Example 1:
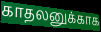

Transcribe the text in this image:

காதலனுக்காக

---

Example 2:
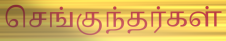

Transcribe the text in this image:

செங்குந்தர்கள்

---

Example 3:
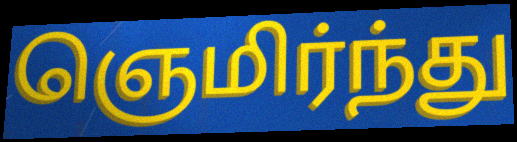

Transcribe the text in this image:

ஞெமிர்ந்து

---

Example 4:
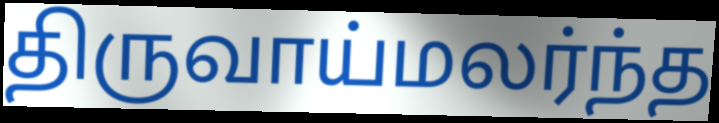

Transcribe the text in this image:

திருவாய்மலர்ந்த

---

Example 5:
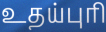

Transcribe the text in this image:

உதய்புரி